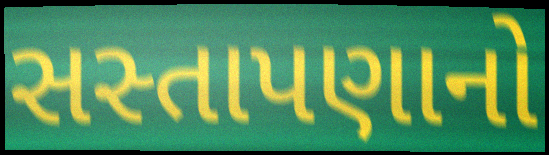
સસ્તાપણાનો